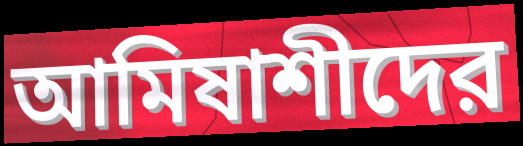
আমিষাশীদের